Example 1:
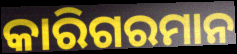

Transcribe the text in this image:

କାରିଗରମାନ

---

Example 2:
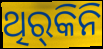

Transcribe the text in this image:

ଥିର୍‍କିନି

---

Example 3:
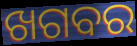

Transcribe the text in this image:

ଖଗବର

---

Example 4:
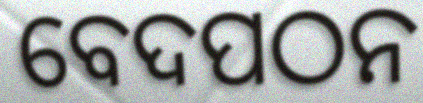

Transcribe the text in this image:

ବେଦପଠନ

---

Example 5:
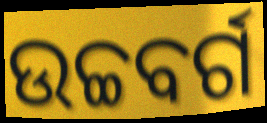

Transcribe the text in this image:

ଉଚ୍ଚବର୍ଗ